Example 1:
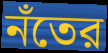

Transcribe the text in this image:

নঁতের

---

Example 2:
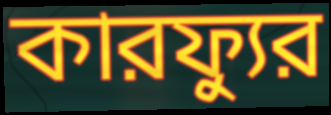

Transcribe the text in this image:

কারফ্যুর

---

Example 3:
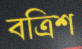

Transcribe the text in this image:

বত্রিশ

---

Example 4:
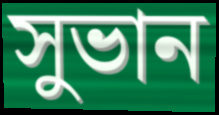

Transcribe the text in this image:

সুভান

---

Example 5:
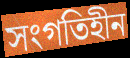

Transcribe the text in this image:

সংগতিহীন